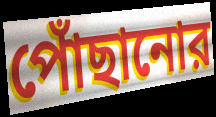
পোঁছানোর